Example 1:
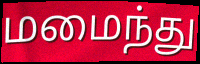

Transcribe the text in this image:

மமைந்து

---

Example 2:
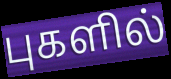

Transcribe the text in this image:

புகளில்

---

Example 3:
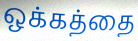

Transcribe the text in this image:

ஒக்கத்தை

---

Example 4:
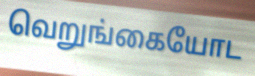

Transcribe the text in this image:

வெறுங்கையோட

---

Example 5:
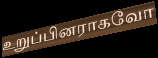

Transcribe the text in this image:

உறுப்பினராகவோ